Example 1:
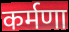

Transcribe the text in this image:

कर्मणा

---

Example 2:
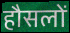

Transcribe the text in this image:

हौसलों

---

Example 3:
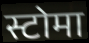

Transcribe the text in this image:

स्टोमा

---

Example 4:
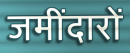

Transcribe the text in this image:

जमींदारों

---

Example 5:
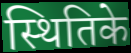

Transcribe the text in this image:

स्थितिके